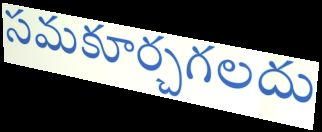
సమకూర్చగలదు